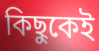
কিছুকেই